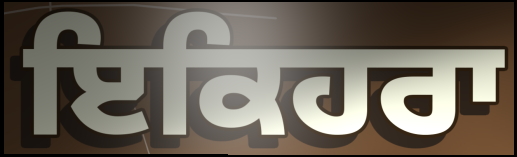
ਇਕਿਹਰਾ